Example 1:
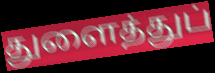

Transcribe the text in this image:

துளைத்துப்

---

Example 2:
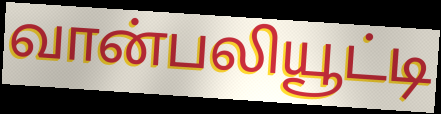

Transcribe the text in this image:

வான்பலியூட்டி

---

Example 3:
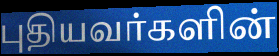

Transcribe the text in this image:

புதியவர்களின்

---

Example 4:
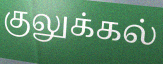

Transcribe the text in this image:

குலுக்கல்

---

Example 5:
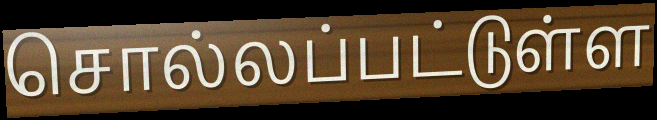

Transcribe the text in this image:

சொல்லப்பட்டுள்ள